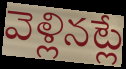
వెళ్లినట్లే